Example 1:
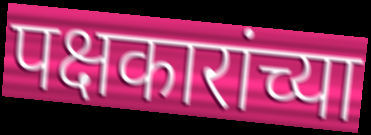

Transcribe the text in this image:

पक्षकारांच्या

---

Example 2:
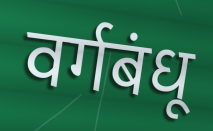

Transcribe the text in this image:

वर्गबंधू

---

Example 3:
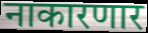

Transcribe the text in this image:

नाकारणार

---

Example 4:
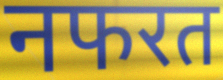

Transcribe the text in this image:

नफरत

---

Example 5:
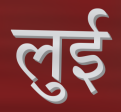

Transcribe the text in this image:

लुई